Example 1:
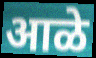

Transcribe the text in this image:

आळे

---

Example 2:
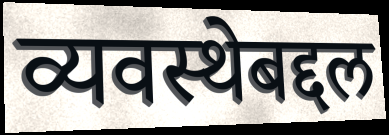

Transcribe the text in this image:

व्यवस्थेबद्दल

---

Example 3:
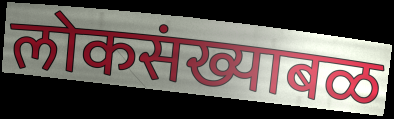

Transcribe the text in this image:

लोकसंख्याबळ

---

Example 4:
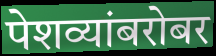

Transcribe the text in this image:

पेशव्यांबरोबर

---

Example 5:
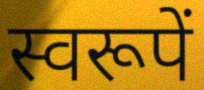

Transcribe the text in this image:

स्वरूपें